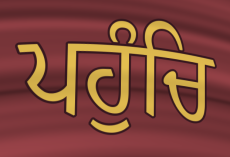
ਪਹੁੰਚਿ